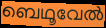
ബെഥൂവേൽ